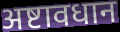
अष्टावधान